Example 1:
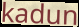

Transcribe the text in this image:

kadun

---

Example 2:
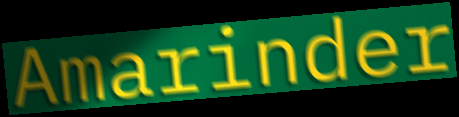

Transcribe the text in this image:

Amarinder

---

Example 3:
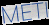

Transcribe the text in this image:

METI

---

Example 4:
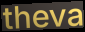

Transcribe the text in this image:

theva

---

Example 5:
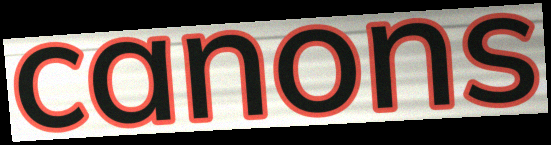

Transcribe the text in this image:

canons